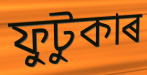
ফুটুকাৰ